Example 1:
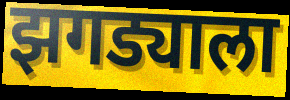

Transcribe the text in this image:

झगड्याला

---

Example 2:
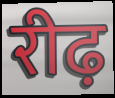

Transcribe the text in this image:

रीढ़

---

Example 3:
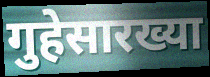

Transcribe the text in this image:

गुहेसारख्या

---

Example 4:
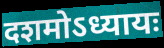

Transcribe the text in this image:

दशमोऽध्यायः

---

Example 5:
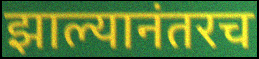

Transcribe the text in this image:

झाल्यानंतरच